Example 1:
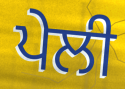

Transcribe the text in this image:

ਪੇਲੀ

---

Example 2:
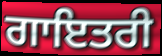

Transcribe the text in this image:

ਗਾਇਤਰੀ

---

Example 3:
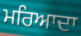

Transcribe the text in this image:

ਮਰਿਆਦਾ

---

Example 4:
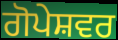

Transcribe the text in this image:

ਗੋਪੇਸ਼ਵਰ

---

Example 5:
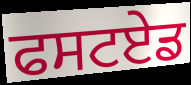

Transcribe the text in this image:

ਫਸਟਏਡ